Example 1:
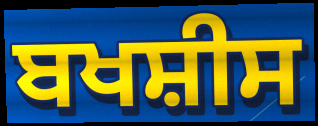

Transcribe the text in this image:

ਬਖਸ਼ੀਸ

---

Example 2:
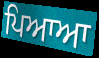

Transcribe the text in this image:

ਪਿਆਆ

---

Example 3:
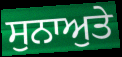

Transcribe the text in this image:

ਸੁਨਾਅੁਤੇ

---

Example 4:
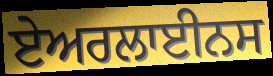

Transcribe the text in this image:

ਏਅਰਲਾਈਨਸ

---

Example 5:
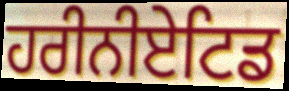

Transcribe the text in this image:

ਹਰੀਨੀਏਟਿਡ